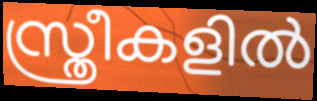
സ്ത്രീകളിൽ